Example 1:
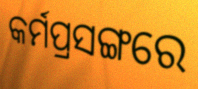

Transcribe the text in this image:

କର୍ମପ୍ରସଙ୍ଗରେ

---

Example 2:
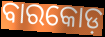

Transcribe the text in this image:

ବାରକୋଡ଼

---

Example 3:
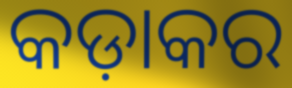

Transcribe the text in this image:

କଡ଼ାକର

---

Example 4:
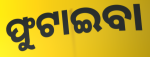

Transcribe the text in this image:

ଫୁଟାଇବା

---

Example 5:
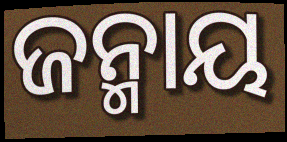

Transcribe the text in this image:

ଜନ୍ମାୟ